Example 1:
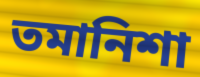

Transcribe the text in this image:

তমানিশা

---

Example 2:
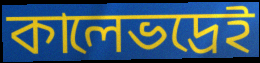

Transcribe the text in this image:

কালেভদ্রেই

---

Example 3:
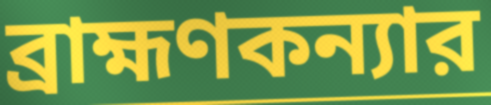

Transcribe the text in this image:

ব্রাহ্মণকন্যার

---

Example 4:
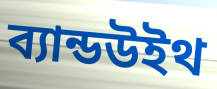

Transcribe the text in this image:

ব্যান্ডউইথ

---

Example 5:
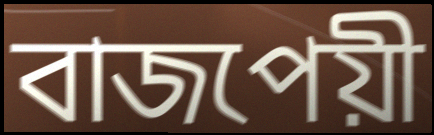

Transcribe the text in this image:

বাজপেয়ী